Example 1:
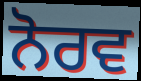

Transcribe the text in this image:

ਨੋਰਵ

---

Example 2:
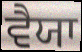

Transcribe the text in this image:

ਵੈਯਾ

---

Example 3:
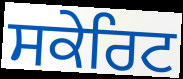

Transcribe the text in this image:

ਸਕੇਰਿਟ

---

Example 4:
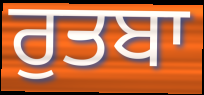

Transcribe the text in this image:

ਰੁਤਬਾ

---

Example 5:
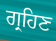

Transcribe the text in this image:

ਗ੍ਰਹਿਣ